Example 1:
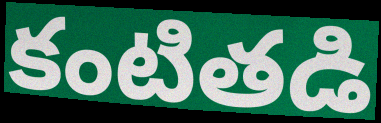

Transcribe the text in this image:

కంటితడి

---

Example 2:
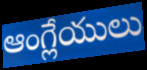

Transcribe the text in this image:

ఆంగ్లేయులు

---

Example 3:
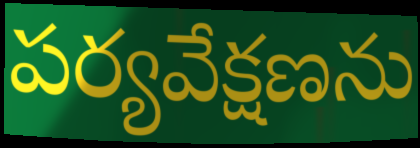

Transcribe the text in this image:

పర్యవేక్షణను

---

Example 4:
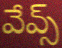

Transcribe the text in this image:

వేవ్స్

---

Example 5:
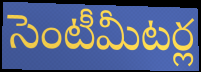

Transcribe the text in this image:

సెంటీమీటర్ల